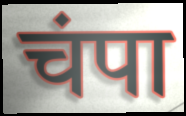
चंपा